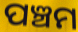
ପଞ୍ଚମ